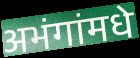
अभंगांमधे